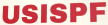
USISPF